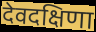
देवदक्षिणा